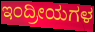
ಇಂದ್ರೀಯಗಳ